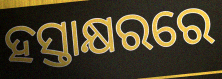
ହସ୍ତାକ୍ଷରରେ